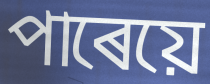
পাৰেয়ে